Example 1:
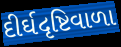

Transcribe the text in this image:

દીર્ઘદૃષ્ટિવાળા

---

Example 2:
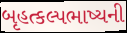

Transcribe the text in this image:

બૃહત્કલ્પભાષ્યની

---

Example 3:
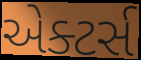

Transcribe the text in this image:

એક્ટર્સ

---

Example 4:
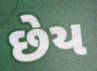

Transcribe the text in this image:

છેય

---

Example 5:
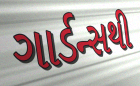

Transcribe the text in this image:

ગાર્ડન્સથી